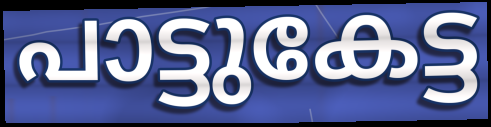
പാട്ടുകേട്ട